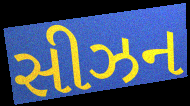
સીઝન